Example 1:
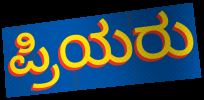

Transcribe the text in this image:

ಪ್ರಿಯರು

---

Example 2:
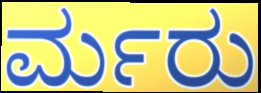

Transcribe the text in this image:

ರ್ಮರು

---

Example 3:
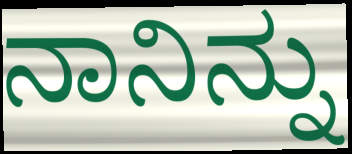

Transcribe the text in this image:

ನಾನಿನ್ನು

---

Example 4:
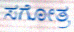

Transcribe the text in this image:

ಸಗೋತ್ರ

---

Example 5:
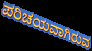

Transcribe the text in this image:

ಪರಿಚಯವಾಗಿರುವ